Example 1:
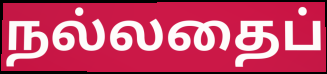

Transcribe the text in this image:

நல்லதைப்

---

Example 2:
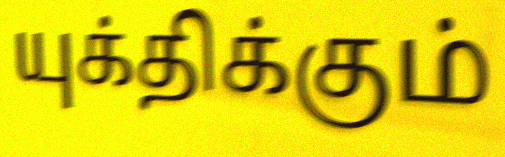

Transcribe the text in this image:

யுக்திக்கும்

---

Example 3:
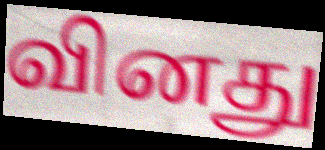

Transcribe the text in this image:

வினது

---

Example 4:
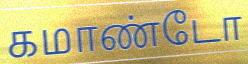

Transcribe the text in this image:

கமாண்டோ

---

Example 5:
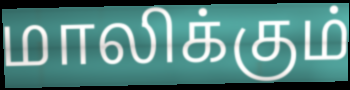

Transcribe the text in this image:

மாலிக்கும்